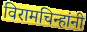
विरामचिन्हांनी